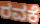
ರವಕೆ